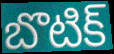
బొటిక్